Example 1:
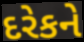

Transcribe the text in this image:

દરેકને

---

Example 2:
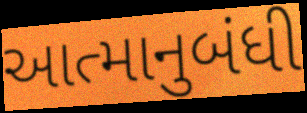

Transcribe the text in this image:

આત્માનુબંધી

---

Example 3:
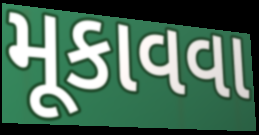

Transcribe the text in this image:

મૂકાવવા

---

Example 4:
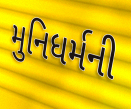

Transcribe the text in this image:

મુનિધર્મની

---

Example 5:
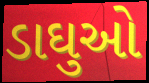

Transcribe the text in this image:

ડાઘુઓ